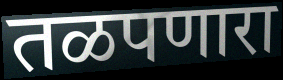
तळपणारा